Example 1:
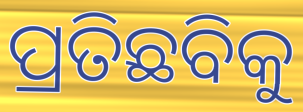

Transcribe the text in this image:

ପ୍ରତିଛବିକୁ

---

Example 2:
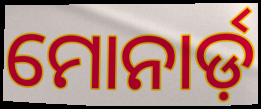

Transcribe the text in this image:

ମୋନାର୍ଡ଼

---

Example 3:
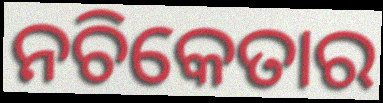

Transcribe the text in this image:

ନଚିକେତାର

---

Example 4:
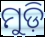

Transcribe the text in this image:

ମୁଡ଼ି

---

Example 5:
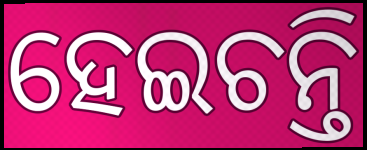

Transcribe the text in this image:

ହେଇଚନ୍ତି